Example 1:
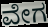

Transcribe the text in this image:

ವೇಗ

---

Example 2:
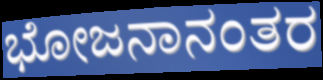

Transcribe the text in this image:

ಭೋಜನಾನಂತರ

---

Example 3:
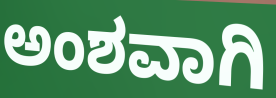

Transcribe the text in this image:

ಅಂಶವಾಗಿ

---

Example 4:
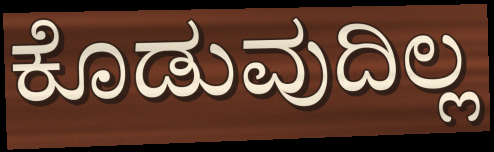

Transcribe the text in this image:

ಕೊಡುವುದಿಲ್ಲ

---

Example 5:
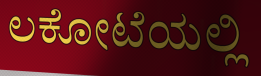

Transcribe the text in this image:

ಲಕೋಟೆಯಲ್ಲಿ